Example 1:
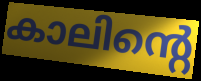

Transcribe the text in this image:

കാലിന്റെ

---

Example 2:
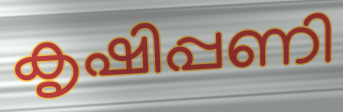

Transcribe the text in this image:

കൃഷിപ്പണി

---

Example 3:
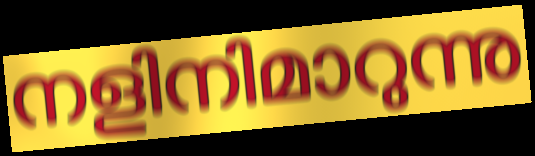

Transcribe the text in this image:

നളിനിമാറുന്നു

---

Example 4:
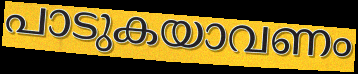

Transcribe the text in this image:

പാടുകയാവണം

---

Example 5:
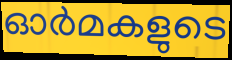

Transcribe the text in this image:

ഓർമകളുടെ